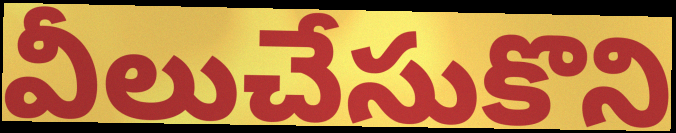
వీలుచేసుకొని